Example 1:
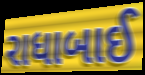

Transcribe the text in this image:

રાધાબાઈ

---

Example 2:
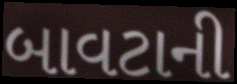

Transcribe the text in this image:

બાવટાની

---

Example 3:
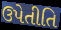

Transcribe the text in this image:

ઉપેતીતિ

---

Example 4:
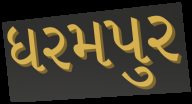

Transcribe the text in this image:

ધરમપુર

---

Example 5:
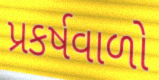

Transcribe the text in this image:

પ્રકર્ષવાળો